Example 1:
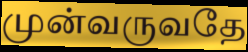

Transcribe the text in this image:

முன்வருவதே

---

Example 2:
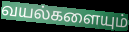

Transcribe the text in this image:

வயல்களையும்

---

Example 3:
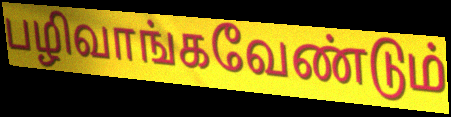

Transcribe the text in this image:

பழிவாங்கவேண்டும்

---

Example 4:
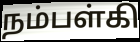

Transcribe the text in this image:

நம்பள்கி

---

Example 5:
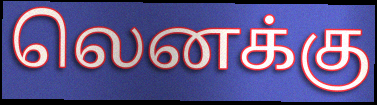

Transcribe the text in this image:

லெனக்கு